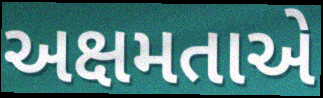
અક્ષમતાએ